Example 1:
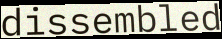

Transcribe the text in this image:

dissembled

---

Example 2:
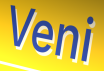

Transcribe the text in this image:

Veni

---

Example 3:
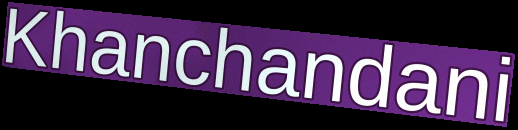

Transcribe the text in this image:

Khanchandani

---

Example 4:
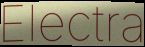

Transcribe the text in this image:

Electra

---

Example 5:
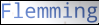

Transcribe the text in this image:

Flemming